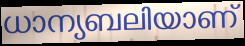
ധാന്യബലിയാണ്